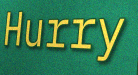
Hurry